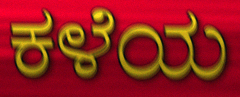
ಕಳೆಯ